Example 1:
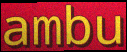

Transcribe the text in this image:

ambu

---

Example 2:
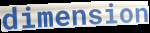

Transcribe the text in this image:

dimension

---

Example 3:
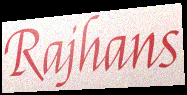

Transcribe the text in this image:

Rajhans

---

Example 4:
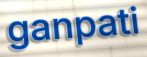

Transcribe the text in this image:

ganpati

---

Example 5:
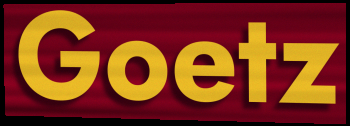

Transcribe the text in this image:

Goetz